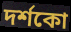
দৰ্শকো